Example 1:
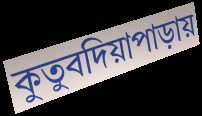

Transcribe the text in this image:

কুতুবদিয়াপাড়ায়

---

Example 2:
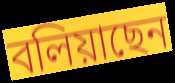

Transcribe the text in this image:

বলিয়াছেন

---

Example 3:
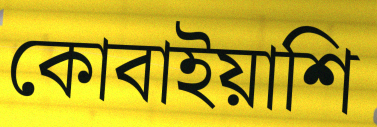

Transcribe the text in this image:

কোবাইয়াশি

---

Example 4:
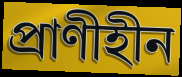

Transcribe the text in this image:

প্রাণীহীন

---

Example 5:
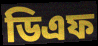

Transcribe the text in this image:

ডিএফ